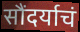
सौंदर्याचं